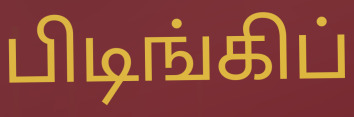
பிடிங்கிப்